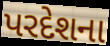
પરદેશના